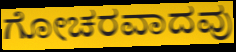
ಗೋಚರವಾದವು